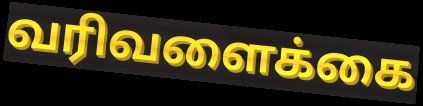
வரிவளைக்கை